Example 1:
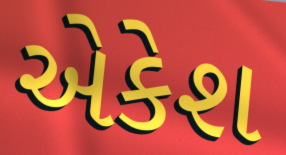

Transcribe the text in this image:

એકેશ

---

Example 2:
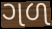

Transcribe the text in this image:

ગળ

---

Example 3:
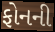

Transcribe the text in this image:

ફોનની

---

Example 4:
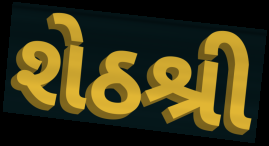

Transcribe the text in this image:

શેઠશ્રી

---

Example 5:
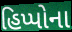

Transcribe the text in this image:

હિપ્પોના